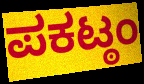
ಪಕಟ್ಠಂ